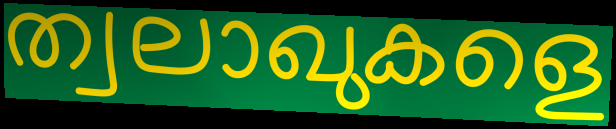
ത്വലാഖുകളെ